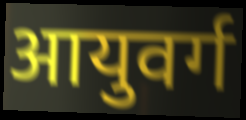
आयुवर्ग